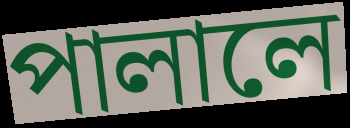
পালালে